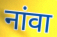
नांवा